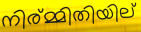
നിര്മ്മിതിയില്